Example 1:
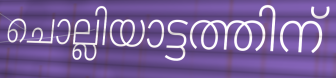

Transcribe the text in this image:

ചൊല്ലിയാട്ടത്തിന്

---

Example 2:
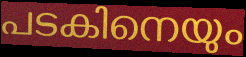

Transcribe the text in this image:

പടകിനെയും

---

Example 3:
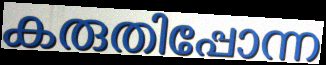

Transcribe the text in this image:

കരുതിപ്പോന്ന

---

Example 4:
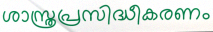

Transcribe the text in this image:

ശാസ്ത്രപ്രസിദ്ധീകരണം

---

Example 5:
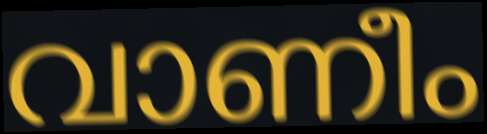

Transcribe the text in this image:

വാണീം